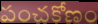
పంచకోణం